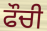
ਫੌਚੀ